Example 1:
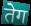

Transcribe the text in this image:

तेग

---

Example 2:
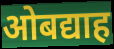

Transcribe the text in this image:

ओबद्याह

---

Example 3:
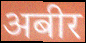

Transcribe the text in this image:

अबीर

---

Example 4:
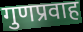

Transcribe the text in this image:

गुणप्रवाह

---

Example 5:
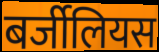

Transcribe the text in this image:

बर्जीलियस